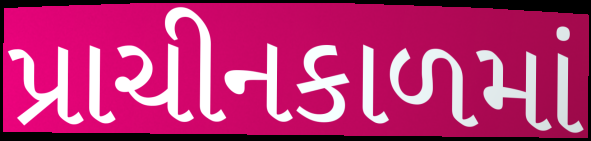
પ્રાચીનકાળમાં